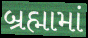
બ્રહ્મામાં